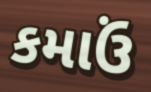
કમાઉં